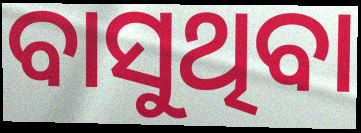
ବାସୁଥିବା